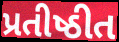
પ્રતીષ્ઠીત